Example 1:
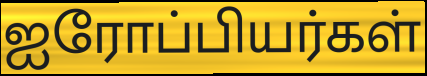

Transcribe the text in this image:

ஐரோப்பியர்கள்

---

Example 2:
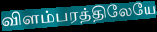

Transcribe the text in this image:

விளம்பரத்திலேயே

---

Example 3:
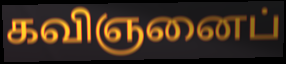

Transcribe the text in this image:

கவிஞனைப்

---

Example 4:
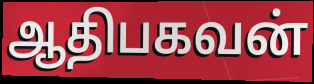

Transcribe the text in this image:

ஆதிபகவன்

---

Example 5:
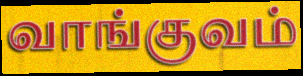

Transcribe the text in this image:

வாங்குவம்